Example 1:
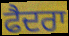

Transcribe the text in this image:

ਫੈਦਰਾ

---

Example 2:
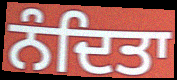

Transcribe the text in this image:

ਨੰਦਿਤਾ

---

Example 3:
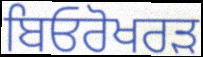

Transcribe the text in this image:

ਬਿਓਰੋਖਰੜ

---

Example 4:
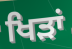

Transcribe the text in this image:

ਖਿੜਾਂ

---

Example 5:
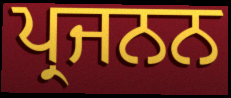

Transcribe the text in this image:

ਪ੍ਰਜਨਨ